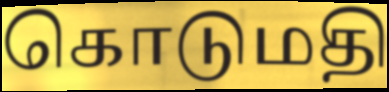
கொடுமதி